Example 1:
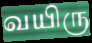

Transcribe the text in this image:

வயிரு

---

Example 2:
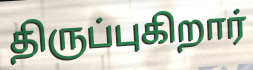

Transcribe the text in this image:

திருப்புகிறார்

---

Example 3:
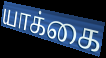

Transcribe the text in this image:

யாக்கை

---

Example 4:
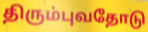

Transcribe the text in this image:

திரும்புவதோடு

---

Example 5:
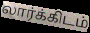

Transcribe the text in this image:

லார்க்கிடம்